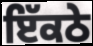
ਇੱਕਠੇ